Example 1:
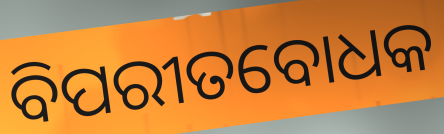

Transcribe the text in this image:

ବିପରୀତବୋଧକ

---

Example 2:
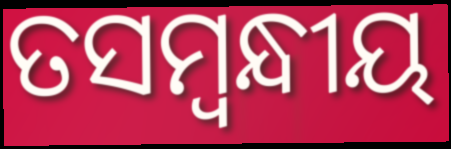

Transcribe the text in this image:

ତସମ୍ବନ୍ଧୀୟ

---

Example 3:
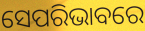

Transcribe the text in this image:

ସେପରିଭାବରେ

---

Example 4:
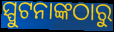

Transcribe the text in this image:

ସ୍ପୁଟନାଙ୍କଠାରୁ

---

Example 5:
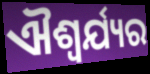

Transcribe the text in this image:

ଐଶ୍ୱର୍ଯ୍ୟର